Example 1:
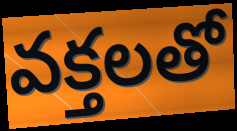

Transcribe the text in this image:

వక్తలతో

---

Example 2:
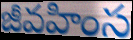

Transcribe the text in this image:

జీవహింస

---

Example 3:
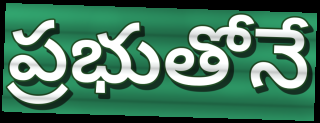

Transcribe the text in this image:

ప్రభుతోనే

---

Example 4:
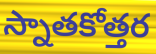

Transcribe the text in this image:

స్నాతకోత్తర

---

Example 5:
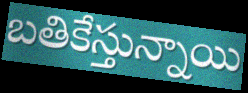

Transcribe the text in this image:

బతికేస్తున్నాయి